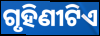
ଗୃହିଣୀଟିଏ